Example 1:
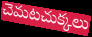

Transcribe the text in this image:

చెమటచుక్కలు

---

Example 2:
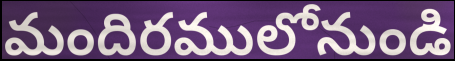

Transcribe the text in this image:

మందిరములోనుండి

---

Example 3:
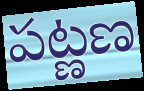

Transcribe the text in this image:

పట్ణణ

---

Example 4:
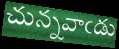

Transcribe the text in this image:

చున్నవాఁడు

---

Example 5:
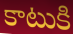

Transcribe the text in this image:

కాటుకి